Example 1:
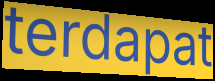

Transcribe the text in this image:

terdapat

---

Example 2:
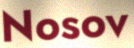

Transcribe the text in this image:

Nosov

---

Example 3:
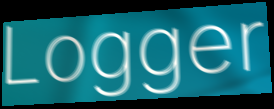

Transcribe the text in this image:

Logger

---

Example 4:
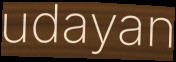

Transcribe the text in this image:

udayan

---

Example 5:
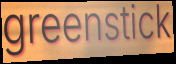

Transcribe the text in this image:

greenstick